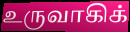
உருவாகிக்